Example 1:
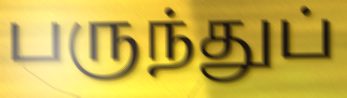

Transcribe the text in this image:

பருந்துப்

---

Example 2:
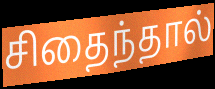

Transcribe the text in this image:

சிதைந்தால்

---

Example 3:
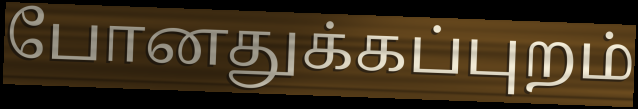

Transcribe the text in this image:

போனதுக்கப்புறம்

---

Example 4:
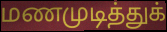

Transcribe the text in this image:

மணமுடித்துக்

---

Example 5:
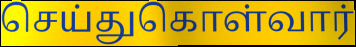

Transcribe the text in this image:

செய்துகொள்வார்